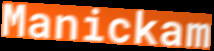
Manickam